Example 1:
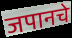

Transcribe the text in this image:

जपानचे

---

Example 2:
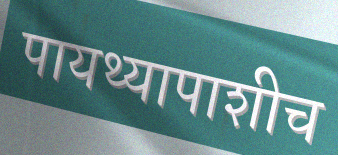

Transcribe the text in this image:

पायथ्यापाशीच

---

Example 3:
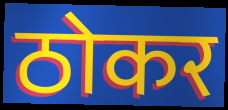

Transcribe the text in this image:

ठोकर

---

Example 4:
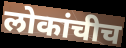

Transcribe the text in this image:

लोकांचीच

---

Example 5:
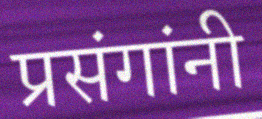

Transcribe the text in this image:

प्रसंगांनी